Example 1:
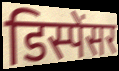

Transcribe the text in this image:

डिस्पेंसर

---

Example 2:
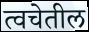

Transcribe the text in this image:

त्वचेतील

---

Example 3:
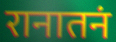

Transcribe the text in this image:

रानातनं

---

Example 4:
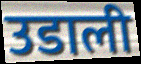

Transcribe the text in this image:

उडाली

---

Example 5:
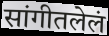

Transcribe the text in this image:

सांगीतलेलं